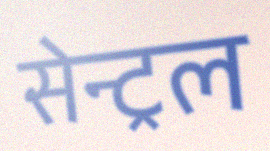
सेन्ट्रल